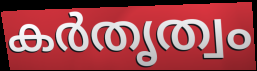
കർതൃത്വം